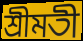
শ্ৰীমতী